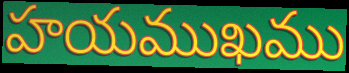
హయముఖము